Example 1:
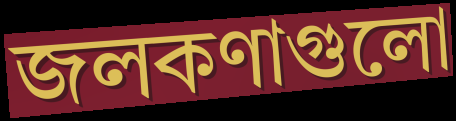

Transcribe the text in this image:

জলকণাগুলো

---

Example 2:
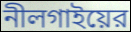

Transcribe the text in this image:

নীলগাইয়ের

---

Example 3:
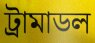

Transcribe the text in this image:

ট্রামাডল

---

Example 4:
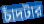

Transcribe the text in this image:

চাঁদটার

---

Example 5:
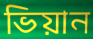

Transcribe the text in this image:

ভিয়ান